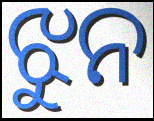
ଝୁନ